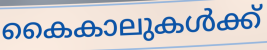
കൈകാലുകൾക്ക്